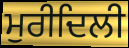
ਮੁਰੀਦਿਲੀ